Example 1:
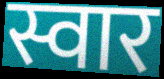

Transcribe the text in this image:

स्‍वार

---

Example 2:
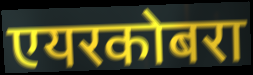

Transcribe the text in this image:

एयरकोबरा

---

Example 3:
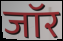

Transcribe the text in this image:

जॉर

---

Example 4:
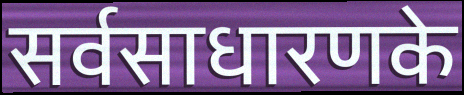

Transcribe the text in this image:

सर्वसाधारणके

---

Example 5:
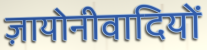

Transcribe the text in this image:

ज़ायोनीवादियों